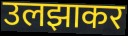
उलझाकर